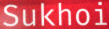
Sukhoi